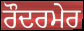
ਰੌਦਰਮੇਰ